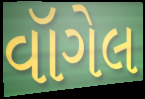
વૉગેલ